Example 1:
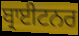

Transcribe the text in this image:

ਬ੍ਰਾਈਟਨਰ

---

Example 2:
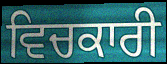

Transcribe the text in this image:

ਵਿਚਕਾਰੀ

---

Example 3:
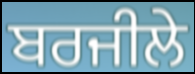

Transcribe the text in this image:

ਬਰਜੀਲੇ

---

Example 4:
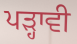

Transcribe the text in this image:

ਪੜ੍ਹਾਵੀ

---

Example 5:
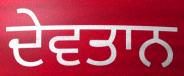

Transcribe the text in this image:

ਦੇਵਤਾਨ